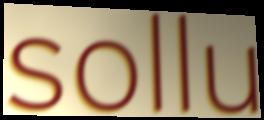
sollu